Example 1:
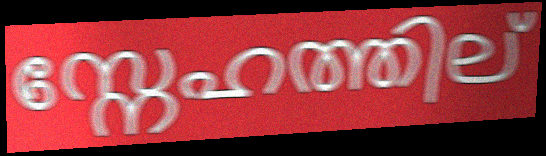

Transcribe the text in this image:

സ്നേഹത്തില്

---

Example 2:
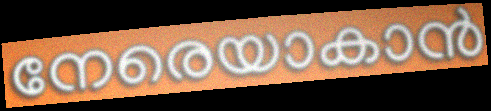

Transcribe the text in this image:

നേരെയാകാൻ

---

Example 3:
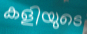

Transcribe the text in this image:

കളിയുടെ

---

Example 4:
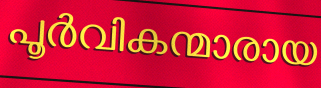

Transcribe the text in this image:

പൂർവികന്മാരായ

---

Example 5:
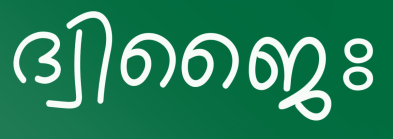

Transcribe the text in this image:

ദ്വിജൈഃ